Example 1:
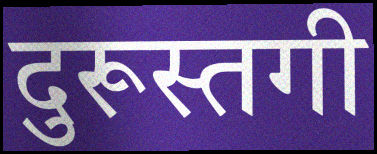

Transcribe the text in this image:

दुरूस्तगी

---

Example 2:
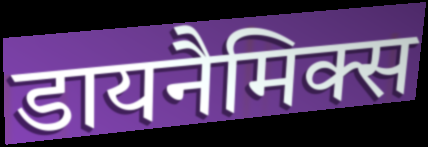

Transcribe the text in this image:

डायनैमिक्‍स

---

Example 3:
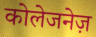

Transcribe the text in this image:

कोलेजनेज़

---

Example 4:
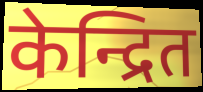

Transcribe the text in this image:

केन्द्रित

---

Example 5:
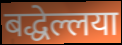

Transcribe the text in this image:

बद्धेल्लया